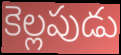
కెల్లపుడు